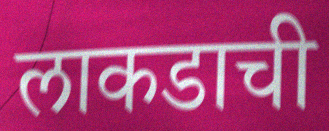
लाकडाची